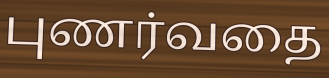
புணர்வதை